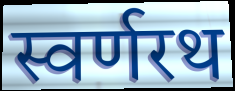
स्वर्णरथ